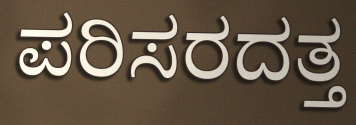
ಪರಿಸರದತ್ತ